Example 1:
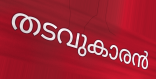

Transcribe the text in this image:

തടവുകാരൻ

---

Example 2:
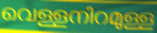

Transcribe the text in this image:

വെള്ളനിറമുള്ള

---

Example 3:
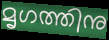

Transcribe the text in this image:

മൃഗത്തിനു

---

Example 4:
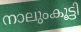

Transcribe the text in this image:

നാലുംകൂട്ടി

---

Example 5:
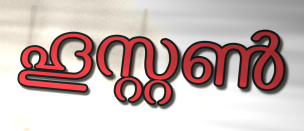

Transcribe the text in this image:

ഹൂസ്റ്റൺ